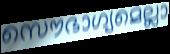
സൌഭാഗ്യമെല്ലാ